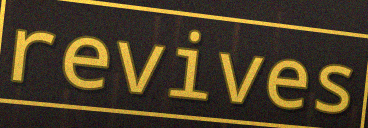
revives